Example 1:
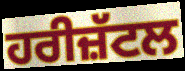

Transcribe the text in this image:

ਹਰੀਜ਼ੱਟਲ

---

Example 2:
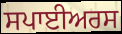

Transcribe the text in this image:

ਸਪਾਈਅਰਸ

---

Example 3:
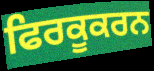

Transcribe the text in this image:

ਫਿਰਕੂਕਰਨ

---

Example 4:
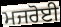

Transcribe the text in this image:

ਮਜਰੋਈ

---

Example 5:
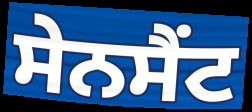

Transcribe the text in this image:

ਸੇਨਸੈਂਟ